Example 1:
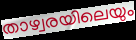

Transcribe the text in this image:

താഴ്വരയിലെയും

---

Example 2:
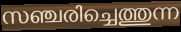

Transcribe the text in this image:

സഞ്ചരിച്ചെത്തുന്ന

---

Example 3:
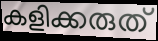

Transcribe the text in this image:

കളിക്കരുത്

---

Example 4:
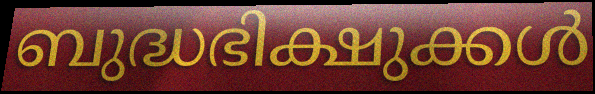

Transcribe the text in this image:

ബുദ്ധഭിക്ഷുക്കൾ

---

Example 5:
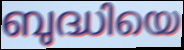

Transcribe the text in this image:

ബുദ്ധിയെ